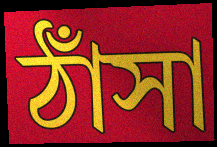
ঠাঁসা